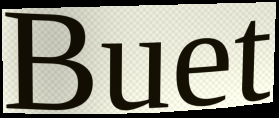
Buet